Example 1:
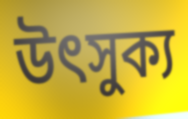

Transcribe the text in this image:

উৎসুক্য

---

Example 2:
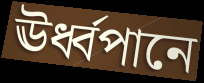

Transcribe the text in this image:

ঊর্ধ্বপানে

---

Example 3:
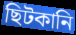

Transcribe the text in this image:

ছিটকানি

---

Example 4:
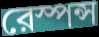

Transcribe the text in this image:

রেস্পন্স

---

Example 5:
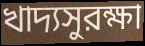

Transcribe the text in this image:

খাদ্যসুরক্ষা